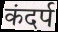
कंदर्प